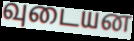
வுடையன